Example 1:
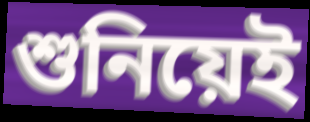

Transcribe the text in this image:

শুনিয়েই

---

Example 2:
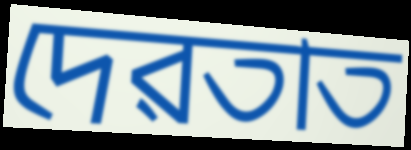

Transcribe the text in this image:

দেৱতাত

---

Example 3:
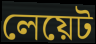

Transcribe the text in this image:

লেয়েট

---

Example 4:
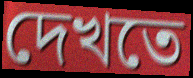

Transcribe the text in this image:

দেখতে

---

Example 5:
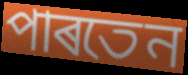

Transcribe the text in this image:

পাৰতেন